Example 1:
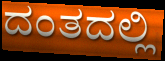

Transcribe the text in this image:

ದಂತದಲ್ಲಿ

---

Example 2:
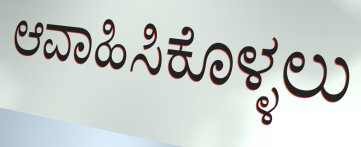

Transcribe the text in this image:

ಆವಾಹಿಸಿಕೊಳ್ಳಲು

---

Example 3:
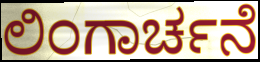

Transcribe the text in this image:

ಲಿಂಗಾರ್ಚನೆ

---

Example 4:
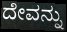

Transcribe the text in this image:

ದೇವನ್ನು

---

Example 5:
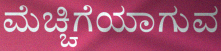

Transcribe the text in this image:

ಮೆಚ್ಚಿಗೆಯಾಗುವ